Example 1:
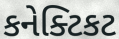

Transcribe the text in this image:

કનેક્ટિકટ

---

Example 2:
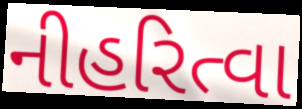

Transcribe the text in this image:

નીહરિત્વા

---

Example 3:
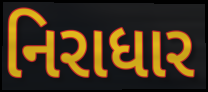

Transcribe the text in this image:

નિરાધાર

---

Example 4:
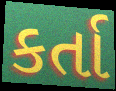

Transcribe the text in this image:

કર્તા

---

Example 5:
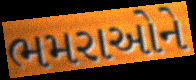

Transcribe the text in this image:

ભમરાઓને